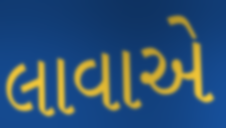
લાવાએ